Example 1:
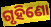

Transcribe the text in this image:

ଗୃହିଣୋ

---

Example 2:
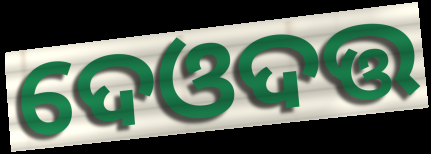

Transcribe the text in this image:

ଦେଓଦତ୍ତ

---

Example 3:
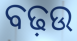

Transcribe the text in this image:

ବଢ଼ଉ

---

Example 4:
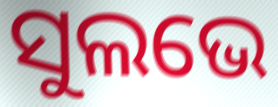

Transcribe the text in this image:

ସୁଲଭେ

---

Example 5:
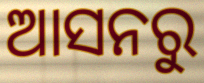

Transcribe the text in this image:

ଆସନରୁ